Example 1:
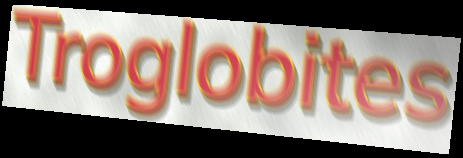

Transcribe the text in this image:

Troglobites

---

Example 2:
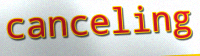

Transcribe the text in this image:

canceling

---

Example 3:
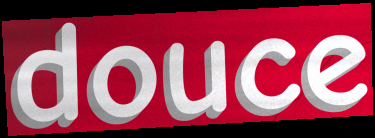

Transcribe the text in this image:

douce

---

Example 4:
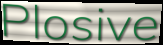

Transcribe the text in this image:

Plosive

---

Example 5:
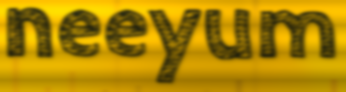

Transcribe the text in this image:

neeyum